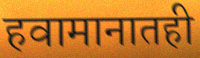
हवामानातही